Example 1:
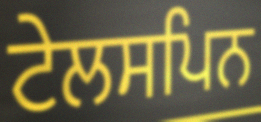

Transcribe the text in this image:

ਟੇਲਸਪਿਨ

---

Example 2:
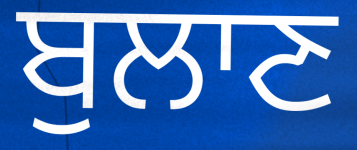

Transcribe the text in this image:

ਬੁਲਾਣ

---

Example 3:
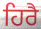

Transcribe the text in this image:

ਹਿਰੈ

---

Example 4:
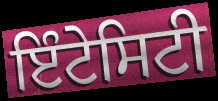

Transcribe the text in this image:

ਇੰਟੇਸਿਟੀ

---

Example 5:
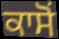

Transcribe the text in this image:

ਕਾਸੋਂ